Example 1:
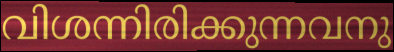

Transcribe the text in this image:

വിശന്നിരിക്കുന്നവനു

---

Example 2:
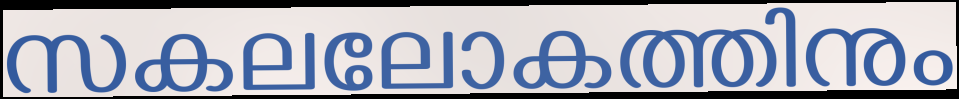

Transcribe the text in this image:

സകലലോകത്തിനും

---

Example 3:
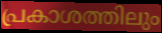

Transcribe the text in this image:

പ്രകാശത്തിലും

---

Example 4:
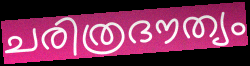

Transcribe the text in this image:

ചരിത്രദൗത്യം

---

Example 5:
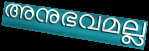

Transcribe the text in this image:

അനുഭവമല്ല